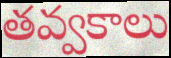
తవ్వకాలు